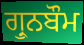
ਗ੍ਰੁਨਬੌਮ